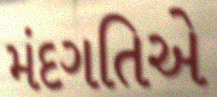
મંદગતિએ